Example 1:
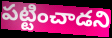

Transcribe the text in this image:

పట్టించాడని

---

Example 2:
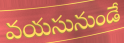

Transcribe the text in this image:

వయసునుండే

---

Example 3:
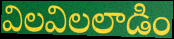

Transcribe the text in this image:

విలవిలలాడిం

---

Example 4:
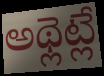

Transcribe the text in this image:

అథ్లెట్లే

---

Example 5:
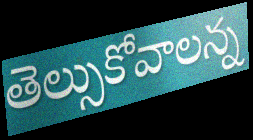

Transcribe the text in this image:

తెల్సుకోవాలన్న